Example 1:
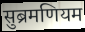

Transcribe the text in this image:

सुब्रमणियम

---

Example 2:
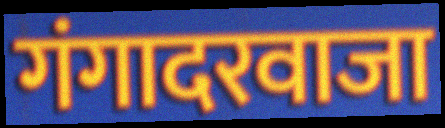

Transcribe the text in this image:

गंगादरवाजा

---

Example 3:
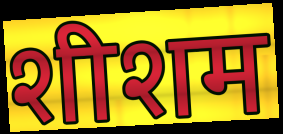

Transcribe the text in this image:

शीशम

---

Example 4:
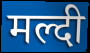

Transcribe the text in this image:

मल्दी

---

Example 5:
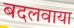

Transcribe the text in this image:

बदलवाया